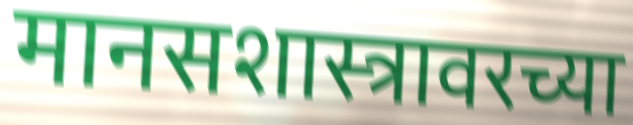
मानसशास्त्रावरच्या